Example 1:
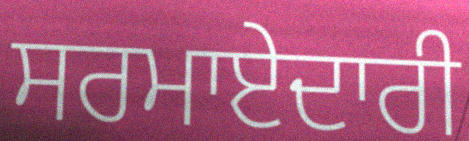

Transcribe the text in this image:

ਸਰਮਾਏਦਾਰੀ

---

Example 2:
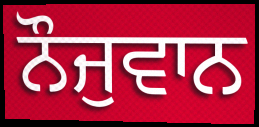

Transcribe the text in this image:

ਨੌਜੁਵਾਨ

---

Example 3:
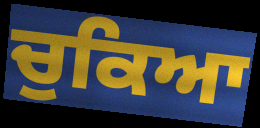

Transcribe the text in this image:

ਚੁਕਿਆ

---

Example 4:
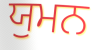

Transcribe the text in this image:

ਯੁਮਨ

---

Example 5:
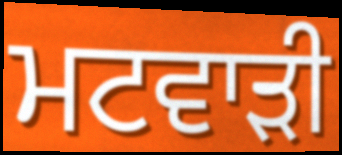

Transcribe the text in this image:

ਮਟਵਾੜੀ